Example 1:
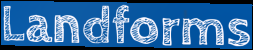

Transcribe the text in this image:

Landforms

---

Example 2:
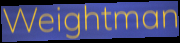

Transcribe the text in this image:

Weightman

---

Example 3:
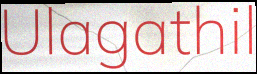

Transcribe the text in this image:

Ulagathil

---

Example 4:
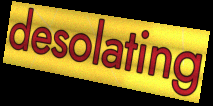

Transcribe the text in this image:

desolating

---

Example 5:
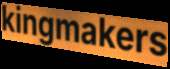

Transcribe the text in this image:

kingmakers